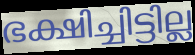
ഭക്ഷിച്ചിട്ടില്ല